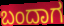
ಬಂದಾಗ